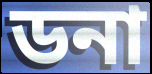
ডনা